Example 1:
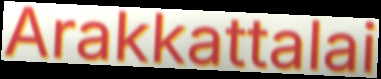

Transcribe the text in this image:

Arakkattalai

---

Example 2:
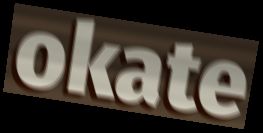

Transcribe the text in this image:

okate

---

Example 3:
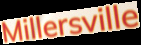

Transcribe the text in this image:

Millersville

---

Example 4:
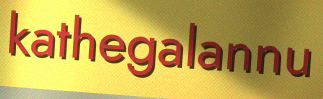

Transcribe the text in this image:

kathegalannu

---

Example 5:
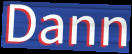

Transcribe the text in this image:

Dann